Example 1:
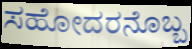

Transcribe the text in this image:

ಸಹೋದರನೊಬ್ಬ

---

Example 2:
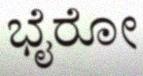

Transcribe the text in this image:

ಭೈರೋ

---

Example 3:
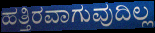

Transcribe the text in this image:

ಹತ್ತಿರವಾಗುವುದಿಲ್ಲ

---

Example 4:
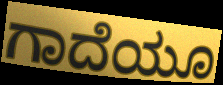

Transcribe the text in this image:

ಗಾದೆಯೂ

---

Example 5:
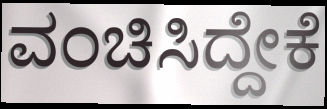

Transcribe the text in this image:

ವಂಚಿಸಿದ್ದೇಕೆ